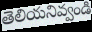
తెలియనివ్వండి